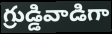
గ్రుడ్డివాడిగా